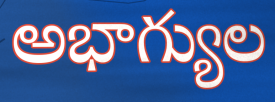
అభాగ్యుల